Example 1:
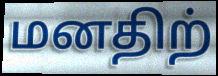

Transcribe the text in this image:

மனதிற்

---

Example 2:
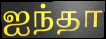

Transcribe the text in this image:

ஐந்தா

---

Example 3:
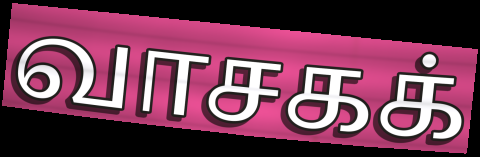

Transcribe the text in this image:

வாசகக்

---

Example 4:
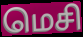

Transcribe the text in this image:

மெசி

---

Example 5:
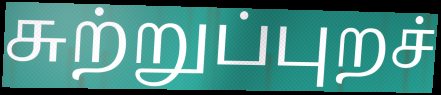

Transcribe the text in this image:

சுற்றுப்புறச்